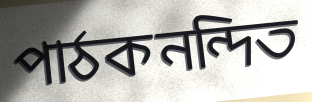
পাঠকনন্দিত